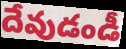
దేవుడండీ